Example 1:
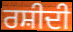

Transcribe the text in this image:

ਰਸ਼ੀਦੀ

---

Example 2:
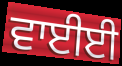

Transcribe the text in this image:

ਵਾਈਈ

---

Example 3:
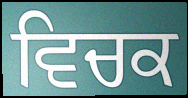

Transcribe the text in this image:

ਵਿਚਕ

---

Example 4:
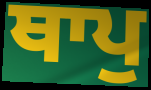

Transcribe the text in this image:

ਥਾਪੁ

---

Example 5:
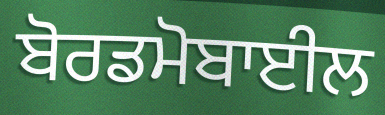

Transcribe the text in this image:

ਬੋਰਡਮੋਬਾਈਲ